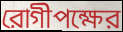
রোগীপক্ষের